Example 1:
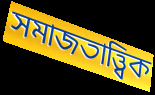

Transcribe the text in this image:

সমাজতাত্ত্বিক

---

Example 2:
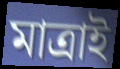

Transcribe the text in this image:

মাত্ৰাই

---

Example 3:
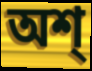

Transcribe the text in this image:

অশ্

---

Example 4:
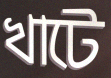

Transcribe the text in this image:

খাটে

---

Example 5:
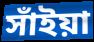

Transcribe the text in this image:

সাঁইয়া